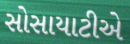
સોસાયાટીએ